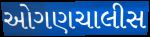
ઓગણચાલીસ